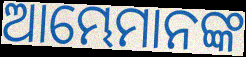
ଆମ୍ଭେମାନଙ୍କ